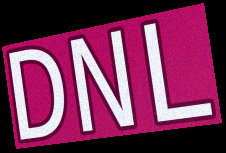
DNL